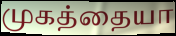
முகத்தையா